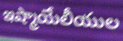
ఇష్మాయేలీయుల